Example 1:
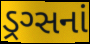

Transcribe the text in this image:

ડ્રગ્સનાં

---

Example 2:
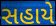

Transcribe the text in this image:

સહાયે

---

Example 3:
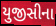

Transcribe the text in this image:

યુજીસીના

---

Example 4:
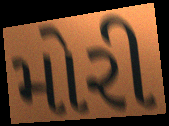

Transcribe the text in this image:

મોરી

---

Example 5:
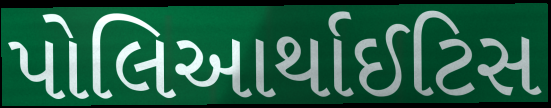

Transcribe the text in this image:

પોલિઆર્થાઈટિસ